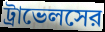
ট্রাভেলসের